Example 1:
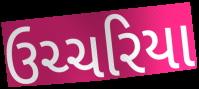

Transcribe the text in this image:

ઉચ્ચરિયા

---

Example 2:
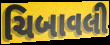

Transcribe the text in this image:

ચિબાવલી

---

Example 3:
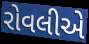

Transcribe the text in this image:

રોવલીએ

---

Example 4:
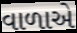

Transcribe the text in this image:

વાળાએ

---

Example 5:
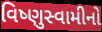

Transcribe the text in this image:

વિષ્ણુસ્વામીનો